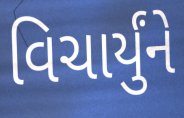
વિચાર્યુંને